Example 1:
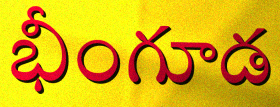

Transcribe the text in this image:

భీంగూడ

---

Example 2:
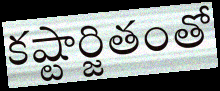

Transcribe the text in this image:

కష్టార్జితంతో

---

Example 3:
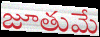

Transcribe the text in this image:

జూతుమే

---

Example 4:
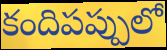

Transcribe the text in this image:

కందిపప్పులో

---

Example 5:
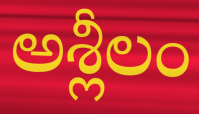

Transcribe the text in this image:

అశ్లీలం